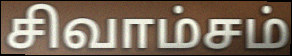
சிவாம்சம்